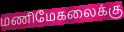
மணிமேகலைக்கு